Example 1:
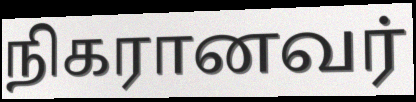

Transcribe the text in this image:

நிகரானவர்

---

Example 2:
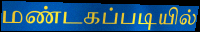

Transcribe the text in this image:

மண்டகப்படியில்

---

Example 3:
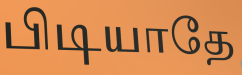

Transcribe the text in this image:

பிடியாதே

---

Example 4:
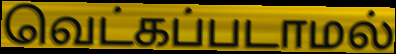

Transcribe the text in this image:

வெட்கப்படாமல்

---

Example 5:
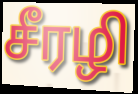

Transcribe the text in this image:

சீரழி